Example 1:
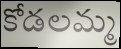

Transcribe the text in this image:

కోడలమ్మ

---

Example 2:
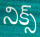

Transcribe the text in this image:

నిక్స్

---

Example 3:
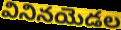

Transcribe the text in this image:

వినినయెడల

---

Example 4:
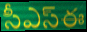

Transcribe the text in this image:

సీఎస్ఈ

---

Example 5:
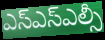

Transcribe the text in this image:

ఎస్ఎస్ఎల్సీ